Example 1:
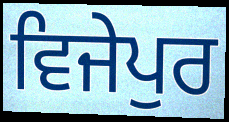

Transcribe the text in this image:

ਵਿਜੇਪੁਰ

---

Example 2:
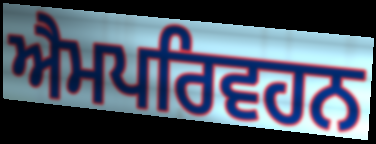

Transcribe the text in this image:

ਐਮਪਰਿਵਹਨ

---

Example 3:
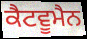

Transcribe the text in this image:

ਕੈਟਵੂਮੈਨ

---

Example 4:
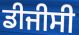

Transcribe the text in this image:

ਡੀਜੀਸੀ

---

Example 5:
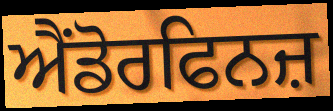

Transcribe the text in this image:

ਐਂਡੋਰਫਿਨਜ਼